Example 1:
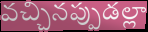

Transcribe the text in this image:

వచ్చినప్పుడల్లా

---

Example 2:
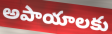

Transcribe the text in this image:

అపాయాలకు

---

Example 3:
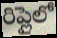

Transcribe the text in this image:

రిప్లైలో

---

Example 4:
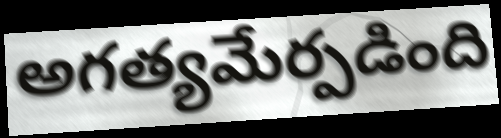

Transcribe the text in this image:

అగత్యమేర్పడింది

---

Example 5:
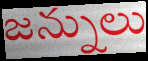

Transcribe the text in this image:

జన్నులు